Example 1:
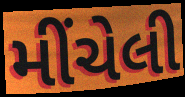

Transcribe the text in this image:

મીંચેલી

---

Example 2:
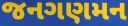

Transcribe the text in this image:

જનગણમન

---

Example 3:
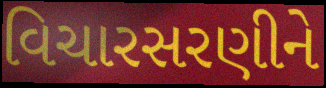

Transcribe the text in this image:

વિચારસરણીને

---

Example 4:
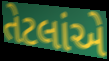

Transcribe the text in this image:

તેટલાંએ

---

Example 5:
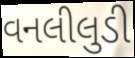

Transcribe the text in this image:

વનલીલુડી